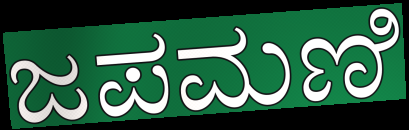
ಜಪಮಣಿ